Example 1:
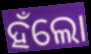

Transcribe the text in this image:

ହଁଲୋ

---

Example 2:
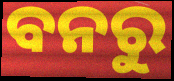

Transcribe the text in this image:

ବନରୁ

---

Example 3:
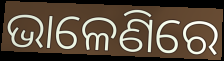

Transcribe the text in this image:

ଭାଳେଣିରେ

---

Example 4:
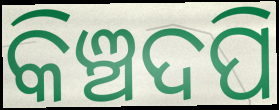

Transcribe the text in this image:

କିଞ୍ଚଦପି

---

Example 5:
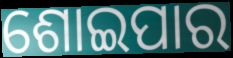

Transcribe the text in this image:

ଶୋଇପାର